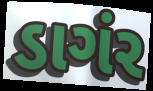
ડાગંર